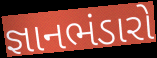
જ્ઞાનભંડારો